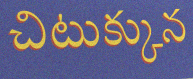
చిటుక్కున